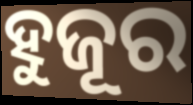
ହୁଜୂର